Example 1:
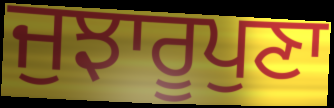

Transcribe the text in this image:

ਜੁਝਾਰੂਪੁਣਾ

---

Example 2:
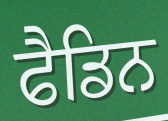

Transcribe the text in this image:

ਫੈਡਿਨ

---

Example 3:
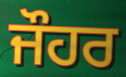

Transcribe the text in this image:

ਜੌਹਰ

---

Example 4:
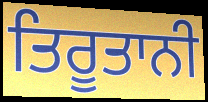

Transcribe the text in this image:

ਤਿਰੂਤਾਨੀ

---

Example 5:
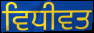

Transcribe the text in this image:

ਵਿਧੀਵਤ